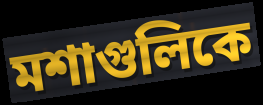
মশাগুলিকে